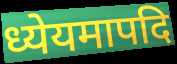
ध्येयमापदि